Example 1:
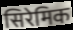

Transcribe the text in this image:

सिरेमिक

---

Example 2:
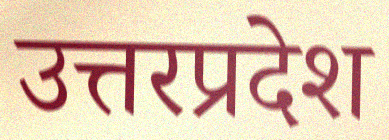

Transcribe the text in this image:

उत्तरप्रदेश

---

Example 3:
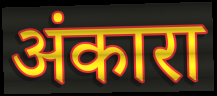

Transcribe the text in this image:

अंकारा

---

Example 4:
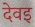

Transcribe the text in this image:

देवइ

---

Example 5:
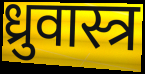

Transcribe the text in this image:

ध्रुवास्त्र